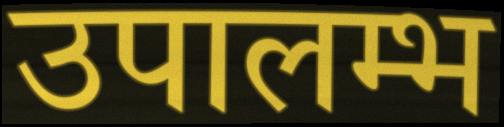
उपालम्भ